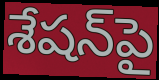
శేషన్‌పై